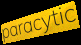
paracytic